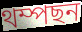
থম্পছন